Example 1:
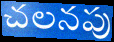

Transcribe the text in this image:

చలనపు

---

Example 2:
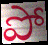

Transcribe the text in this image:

పో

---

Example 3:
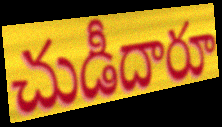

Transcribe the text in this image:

చుడీదారూ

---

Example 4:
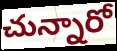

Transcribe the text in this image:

చున్నారో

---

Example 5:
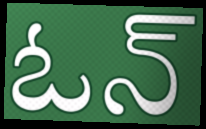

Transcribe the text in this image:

ఓన్